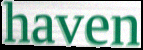
haven